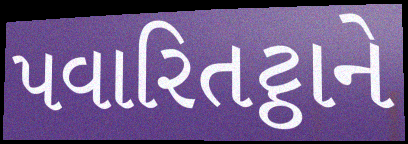
પવારિતટ્ઠાને